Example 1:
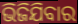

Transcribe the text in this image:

ଭିଜିଯିବାର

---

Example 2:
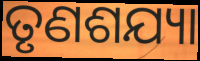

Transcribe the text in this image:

ତୃଣଶଯ୍ୟା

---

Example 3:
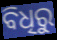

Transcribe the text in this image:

ବିଧିରୁ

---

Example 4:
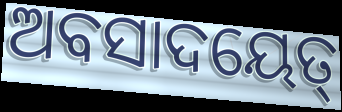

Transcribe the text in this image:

ଅବସାଦୟେତ୍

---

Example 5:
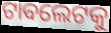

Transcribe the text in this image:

ଟାବଲେଟକୁ